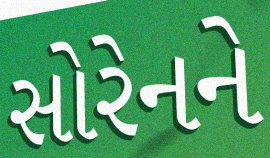
સોરેનને